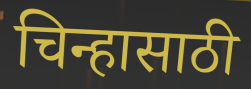
चिन्हासाठी